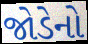
જોડેનો